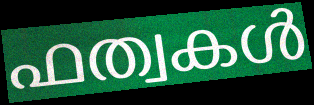
ഫത്വകൾ